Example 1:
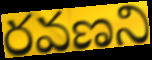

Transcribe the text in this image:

రవణని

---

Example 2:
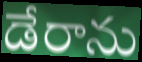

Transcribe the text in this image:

డేరాను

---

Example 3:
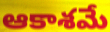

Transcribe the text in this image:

ఆకాశమే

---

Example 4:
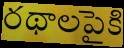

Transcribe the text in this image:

రథాలపైకి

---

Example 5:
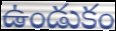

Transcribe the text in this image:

ఉండుకం